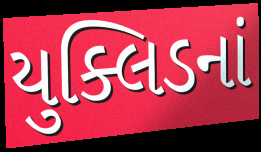
યુક્લિડનાં